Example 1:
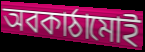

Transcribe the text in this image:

অবকাঠামোই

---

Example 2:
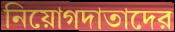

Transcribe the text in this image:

নিয়োগদাতাদের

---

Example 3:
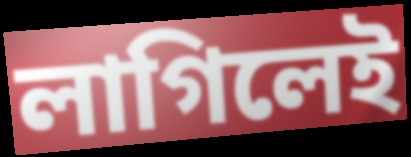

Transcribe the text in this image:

লাগিলেই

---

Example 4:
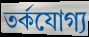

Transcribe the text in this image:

তর্কযোগ্য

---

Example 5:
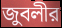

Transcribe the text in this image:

জুবলীর